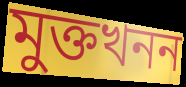
মুক্তখনন